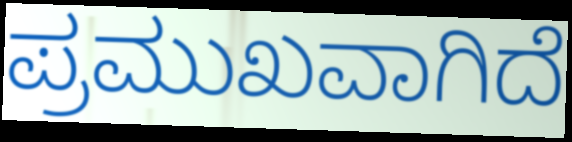
ಪ್ರಮುಖವಾಗಿದೆ